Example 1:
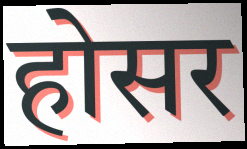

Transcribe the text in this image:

होसर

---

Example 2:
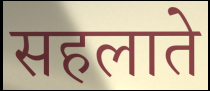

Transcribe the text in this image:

सहलाते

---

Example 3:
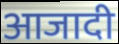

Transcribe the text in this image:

आजादी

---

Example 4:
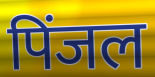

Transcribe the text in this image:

पिंजल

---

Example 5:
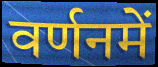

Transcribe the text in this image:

वर्णनमें